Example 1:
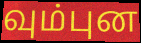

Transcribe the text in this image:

வும்புன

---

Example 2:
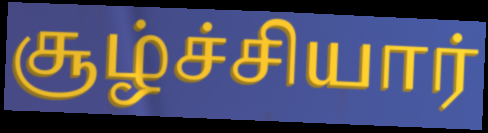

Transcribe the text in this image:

சூழ்ச்சியார்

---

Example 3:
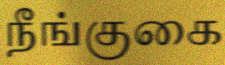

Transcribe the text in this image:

நீங்குகை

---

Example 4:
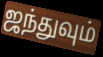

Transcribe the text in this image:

ஜந்துவும்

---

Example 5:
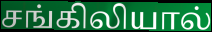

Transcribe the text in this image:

சங்கிலியால்